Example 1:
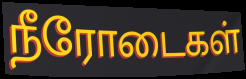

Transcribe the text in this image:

நீரோடைகள்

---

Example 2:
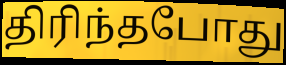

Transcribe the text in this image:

திரிந்தபோது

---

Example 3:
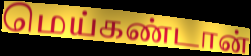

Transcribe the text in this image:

மெய்கண்டான்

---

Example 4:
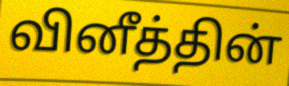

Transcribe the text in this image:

வினீத்தின்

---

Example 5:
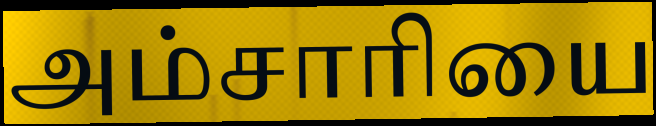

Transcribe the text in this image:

அம்சாரியை